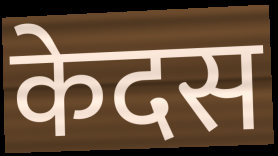
केदस